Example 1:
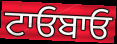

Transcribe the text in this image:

ਟਾਓਬਾਓ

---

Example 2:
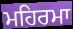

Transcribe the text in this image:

ਮਹਿਰਮਾ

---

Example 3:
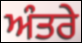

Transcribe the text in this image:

ਅੰਤਰੇ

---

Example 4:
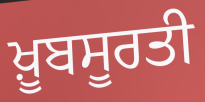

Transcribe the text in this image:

ਖ਼ੂਬਸੂਰਤੀ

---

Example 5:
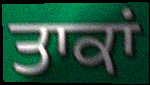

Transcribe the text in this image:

ਤਾਕਾਂ